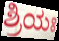
ಶ್ರಿಯಃ